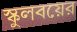
স্কুলবয়ের